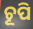
ଚୂପି